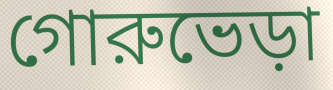
গোরুভেড়া